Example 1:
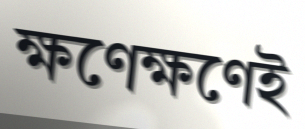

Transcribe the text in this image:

ক্ষণেক্ষণেই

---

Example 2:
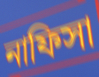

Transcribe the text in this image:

নাফিসা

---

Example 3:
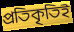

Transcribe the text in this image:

প্রতিকৃতিই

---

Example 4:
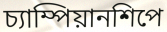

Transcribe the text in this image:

চ্যাম্পিয়ানশিপে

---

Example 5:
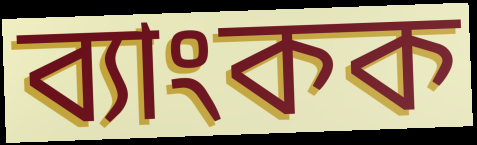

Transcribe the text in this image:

ব্যাংকক